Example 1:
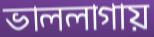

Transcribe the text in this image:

ভাললাগায়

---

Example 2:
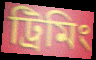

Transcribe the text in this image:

ট্রিমিং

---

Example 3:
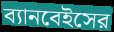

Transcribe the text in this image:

ব্যানবেইসের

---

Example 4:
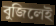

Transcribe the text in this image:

বুজিলেই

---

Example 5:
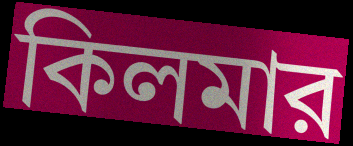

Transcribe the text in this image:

কিলমার